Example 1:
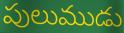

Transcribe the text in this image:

పులుముడు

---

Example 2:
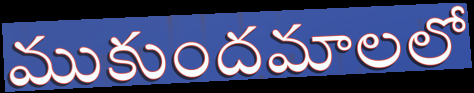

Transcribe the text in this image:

ముకుందమాలలో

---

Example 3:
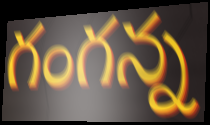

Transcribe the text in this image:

గంగన్న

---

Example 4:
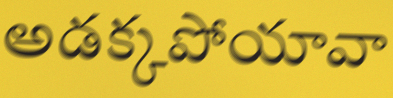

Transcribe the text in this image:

అడక్కపోయావా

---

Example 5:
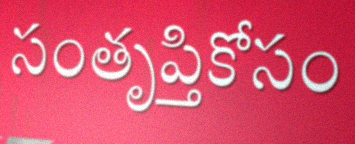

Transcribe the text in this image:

సంతృప్తికోసం